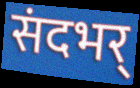
संदभर्